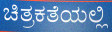
ಚಿತ್ರಕತೆಯಲ್ಲಿ